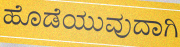
ಹೊಡೆಯುವುದಾಗಿ